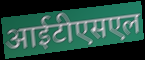
आईटीएसएल